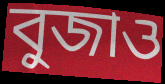
বুজাও